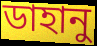
ডাহানু